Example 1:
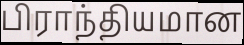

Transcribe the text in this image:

பிராந்தியமான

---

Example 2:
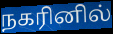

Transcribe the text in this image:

நகரினில்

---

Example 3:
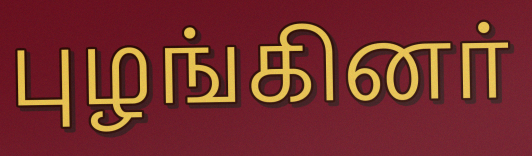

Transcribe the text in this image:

புழங்கினர்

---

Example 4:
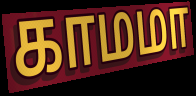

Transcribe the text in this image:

காமமா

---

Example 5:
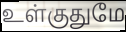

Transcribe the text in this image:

உள்குதுமே